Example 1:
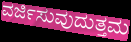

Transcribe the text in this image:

ವರ್ಜಿಸುವುದುತ್ತಮ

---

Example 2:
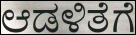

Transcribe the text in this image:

ಆಡಳಿತೆಗೆ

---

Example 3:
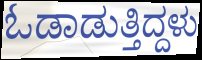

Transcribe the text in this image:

ಓಡಾಡುತ್ತಿದ್ದಳು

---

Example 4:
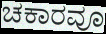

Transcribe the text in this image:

ಚಕಾರವೂ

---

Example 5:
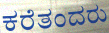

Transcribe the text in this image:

ಕರೆತಂದರು